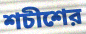
শচীশের